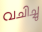
വചിച്ചു